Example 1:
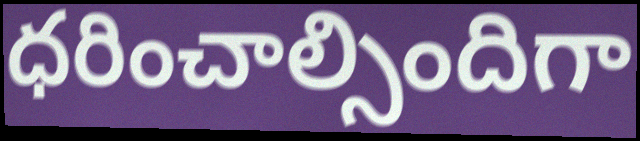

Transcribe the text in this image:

ధరించాల్సిందిగా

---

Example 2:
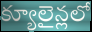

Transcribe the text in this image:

క్యూలైన్లలో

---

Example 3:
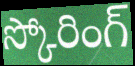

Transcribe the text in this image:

స్కోరింగ్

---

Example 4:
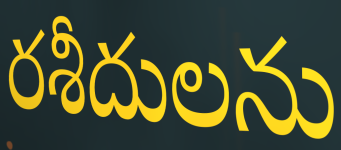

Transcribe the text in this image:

రశీదులను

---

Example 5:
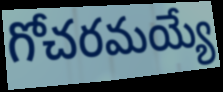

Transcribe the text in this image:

గోచరమయ్యే